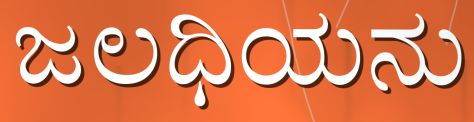
ಜಲಧಿಯನು